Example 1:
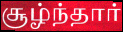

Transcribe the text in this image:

சூழ்ந்தார்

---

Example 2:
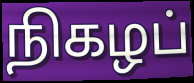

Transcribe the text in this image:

நிகழப்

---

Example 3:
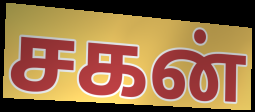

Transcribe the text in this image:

சகன்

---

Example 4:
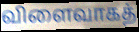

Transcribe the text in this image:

விளைவாகத்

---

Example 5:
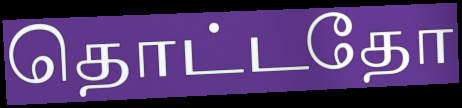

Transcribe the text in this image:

தொட்டதோ